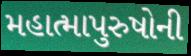
મહાત્માપુરુષોની